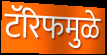
टॅरिफमुळे